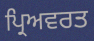
ਪ੍ਰਿਅਵਰਤ